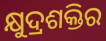
କ୍ଷୁଦ୍ରଶକ୍ତିର